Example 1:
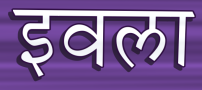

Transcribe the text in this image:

इवला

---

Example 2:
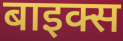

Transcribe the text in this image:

बाइक्स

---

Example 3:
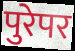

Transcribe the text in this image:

पुरेपर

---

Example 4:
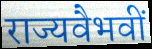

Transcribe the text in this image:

राज्यवैभवीं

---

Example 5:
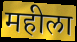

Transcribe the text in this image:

महीला